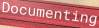
Documenting